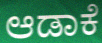
ಆಡಾಕೆ